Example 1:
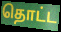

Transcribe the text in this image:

தொட்ட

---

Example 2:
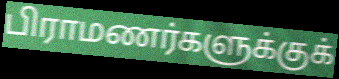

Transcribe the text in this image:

பிராமணர்களுக்குக்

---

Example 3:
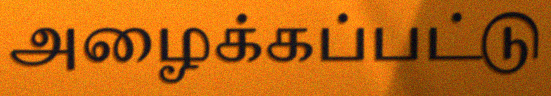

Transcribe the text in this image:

அழைக்கப்பட்டு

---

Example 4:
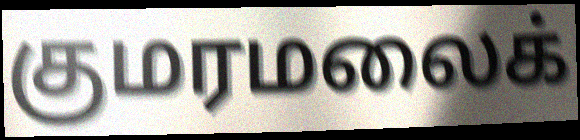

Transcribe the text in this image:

குமரமலைக்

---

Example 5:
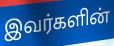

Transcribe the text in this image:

இவர்களின்